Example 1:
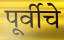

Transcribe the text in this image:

पूर्वीचे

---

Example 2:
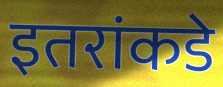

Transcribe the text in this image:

इतरांकडे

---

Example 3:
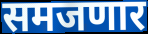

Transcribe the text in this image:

समजणार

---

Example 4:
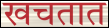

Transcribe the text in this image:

खचतात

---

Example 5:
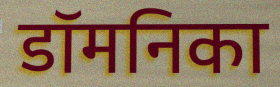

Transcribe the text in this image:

डॉमनिका